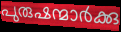
പുരുഷന്മാർക്കു